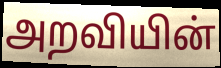
அறவியின்